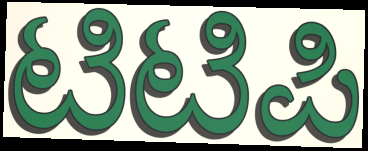
ಟಿಟಿಪಿ